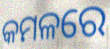
କମଳରେ